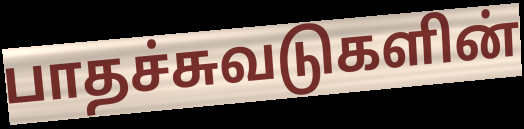
பாதச்சுவடுகளின்